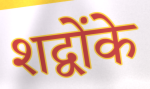
शद्वोंके